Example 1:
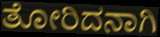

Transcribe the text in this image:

ತೋರಿದನಾಗಿ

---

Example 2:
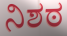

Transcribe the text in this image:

ನಿಶಠ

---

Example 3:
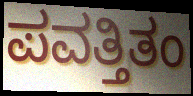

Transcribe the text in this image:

ಪವತ್ತಿತಂ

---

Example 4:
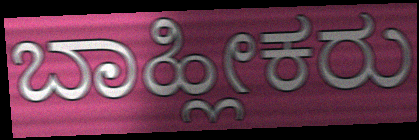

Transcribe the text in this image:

ಬಾಹ್ಲೀಕರು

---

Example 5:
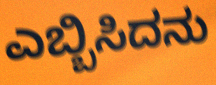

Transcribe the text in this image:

ಎಬ್ಬಿಸಿದನು